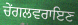
ਚੇਂਗਲਵਰਾਇਣ